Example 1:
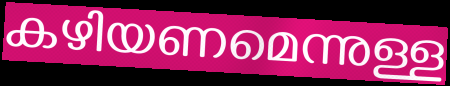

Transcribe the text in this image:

കഴിയണമെന്നുള്ള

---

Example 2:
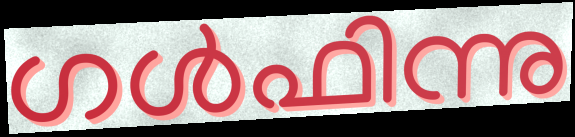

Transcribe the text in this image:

ഗൾഫിന്നു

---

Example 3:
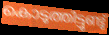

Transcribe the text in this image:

കൊടുത്തിട്ടുണ്ടു്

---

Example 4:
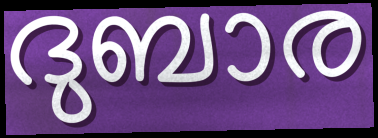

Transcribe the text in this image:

ദുബാര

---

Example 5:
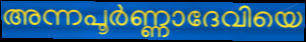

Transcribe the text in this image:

അന്നപൂർണ്ണാദേവിയെ